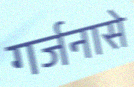
गर्जनासे